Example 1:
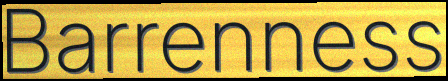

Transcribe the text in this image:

Barrenness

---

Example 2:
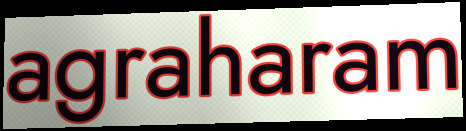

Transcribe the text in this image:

agraharam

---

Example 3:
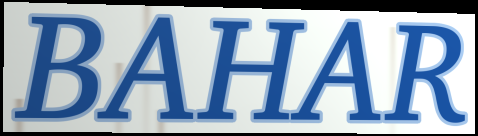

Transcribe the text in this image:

BAHAR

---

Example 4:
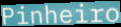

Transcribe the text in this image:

Pinheiro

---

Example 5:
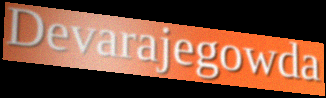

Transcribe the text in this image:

Devarajegowda